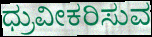
ಧ್ರುವೀಕರಿಸುವ